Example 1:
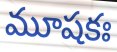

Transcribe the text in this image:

మూషకః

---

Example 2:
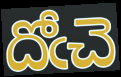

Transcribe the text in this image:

దోఁచె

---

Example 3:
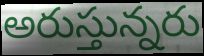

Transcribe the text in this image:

అరుస్తున్నరు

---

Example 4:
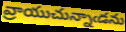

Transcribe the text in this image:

వ్రాయుచున్నాఁడను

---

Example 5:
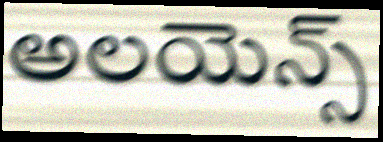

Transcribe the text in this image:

అలయెన్స్